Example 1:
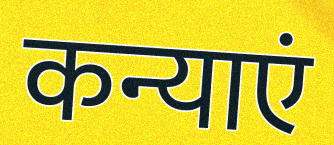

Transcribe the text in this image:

कन्याएं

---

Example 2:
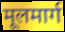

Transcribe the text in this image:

मूलमार्ग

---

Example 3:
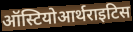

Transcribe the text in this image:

ऑस्टियोआर्थराइटिस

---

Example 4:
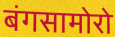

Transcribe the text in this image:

बंगसामोरो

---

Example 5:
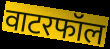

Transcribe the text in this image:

वाटरफॉल